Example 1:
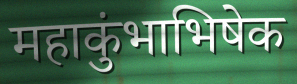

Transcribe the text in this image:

महाकुंभाभिषेक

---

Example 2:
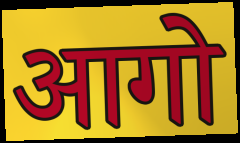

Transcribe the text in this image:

आगो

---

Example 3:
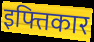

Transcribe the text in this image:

इफ्तिकार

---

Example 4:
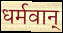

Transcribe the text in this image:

धर्मवान्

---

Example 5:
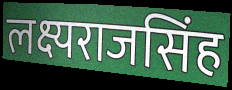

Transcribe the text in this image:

लक्ष्यराजसिंह